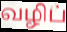
வழிப்